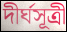
দীর্ঘসূত্রী